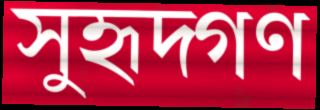
সুহৃদ্গণ